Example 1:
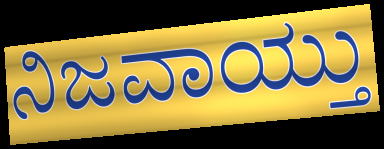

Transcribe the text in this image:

ನಿಜವಾಯ್ತು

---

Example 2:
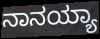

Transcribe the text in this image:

ನಾನಯ್ಯಾ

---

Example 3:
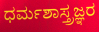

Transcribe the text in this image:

ಧರ್ಮಶಾಸ್ತ್ರಜ್ಞರ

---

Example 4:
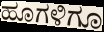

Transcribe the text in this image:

ಹೂಗಳಿಗೂ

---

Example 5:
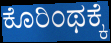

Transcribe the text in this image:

ಕೊರಿಂಥಕ್ಕೆ